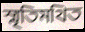
স্মৃতিমথিত